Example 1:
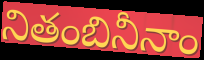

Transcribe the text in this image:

నితంబినీనాం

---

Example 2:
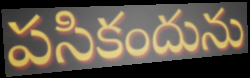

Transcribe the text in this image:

పసికందును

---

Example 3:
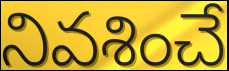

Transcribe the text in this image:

నివశించే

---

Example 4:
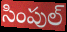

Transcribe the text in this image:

సింపుల్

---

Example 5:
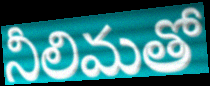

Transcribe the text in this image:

నీలిమతో